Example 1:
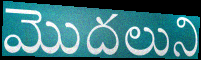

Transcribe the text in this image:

మొదలుని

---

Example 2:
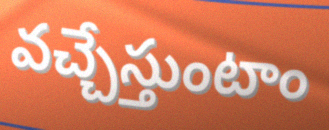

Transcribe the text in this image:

వచ్చేస్తుంటాం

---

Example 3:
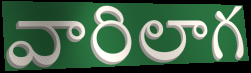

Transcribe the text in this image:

వారిలాగ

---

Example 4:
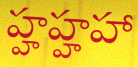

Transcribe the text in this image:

హ్హహ్హహా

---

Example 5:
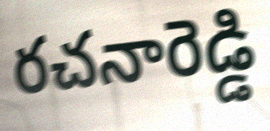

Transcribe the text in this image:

రచనారెడ్డి